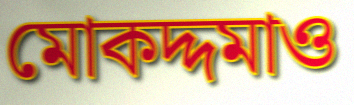
মোকদ্দমাও